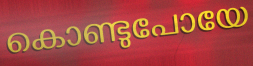
കൊണ്ടുപോയേ